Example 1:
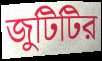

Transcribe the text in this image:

জুটিটির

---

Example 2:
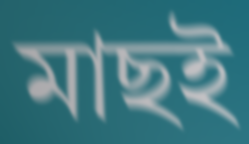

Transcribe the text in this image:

মাছই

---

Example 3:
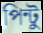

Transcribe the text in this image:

পিন্টু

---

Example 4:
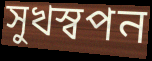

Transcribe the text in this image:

সুখস্বপন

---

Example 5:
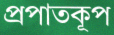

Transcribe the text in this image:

প্রপাতকূপ